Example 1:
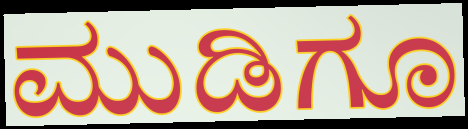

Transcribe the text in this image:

ಮುಡಿಗೂ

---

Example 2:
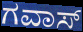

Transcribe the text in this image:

ಗವಾಸ್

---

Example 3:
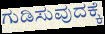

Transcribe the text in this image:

ಗುಡಿಸುವುದಕ್ಕೆ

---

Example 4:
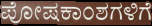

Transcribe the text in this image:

ಪೋಷಕಾಂಶಗಳಿಗೆ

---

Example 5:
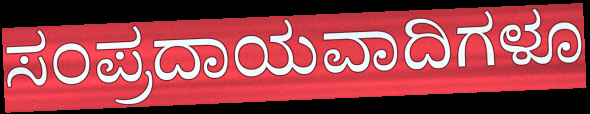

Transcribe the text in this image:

ಸಂಪ್ರದಾಯವಾದಿಗಳೂ